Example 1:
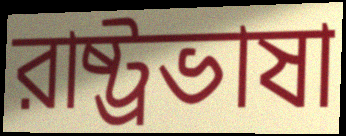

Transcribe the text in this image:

রাষ্ট্রভাষা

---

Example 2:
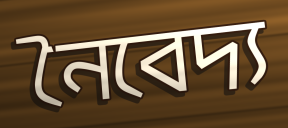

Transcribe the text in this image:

নৈবেদ্য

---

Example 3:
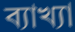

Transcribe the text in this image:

ব্যাখ্যা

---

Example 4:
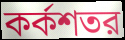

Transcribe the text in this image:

কর্কশতর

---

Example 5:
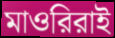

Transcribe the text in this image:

মাওরিরাই